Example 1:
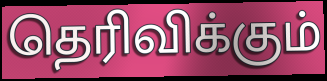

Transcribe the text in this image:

தெரிவிக்கும்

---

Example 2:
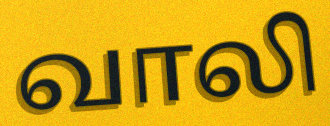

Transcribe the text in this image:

வாலி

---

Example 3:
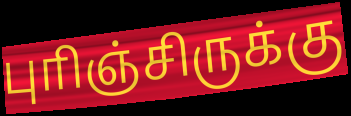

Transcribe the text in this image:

புரிஞ்சிருக்கு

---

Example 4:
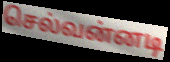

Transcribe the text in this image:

செல்வன்னடி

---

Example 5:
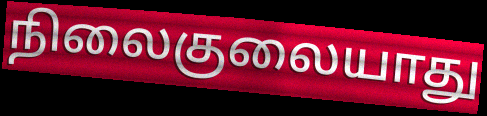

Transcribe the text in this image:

நிலைகுலையாது